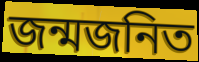
জন্মজনিত